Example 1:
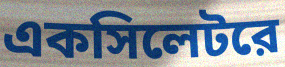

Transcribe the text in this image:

একসিলেটরে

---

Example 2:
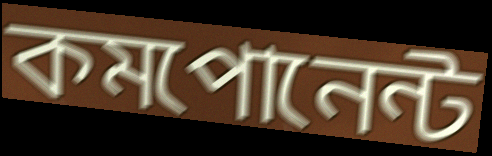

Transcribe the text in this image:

কমপোনেন্ট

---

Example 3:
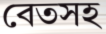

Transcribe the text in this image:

বেতসহ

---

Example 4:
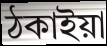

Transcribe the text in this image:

ঠকাইয়া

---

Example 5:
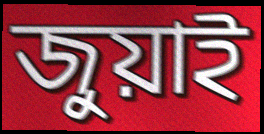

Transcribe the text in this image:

জুয়াই